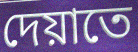
দেয়াতে